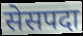
सेसपदा